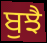
ਬੁਝੈ